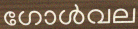
ഗോൾവല